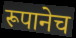
रूपानेच